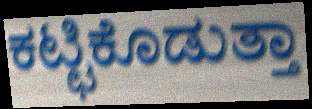
ಕಟ್ಟಿಕೊಡುತ್ತಾ